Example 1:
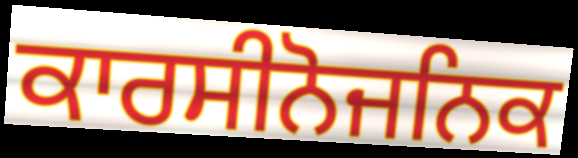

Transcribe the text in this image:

ਕਾਰਸੀਨੋਜਨਿਕ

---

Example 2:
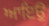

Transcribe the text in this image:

ਆਇਉ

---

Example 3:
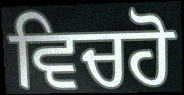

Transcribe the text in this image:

ਵਿਚਹੋ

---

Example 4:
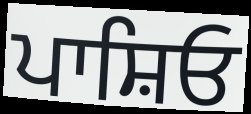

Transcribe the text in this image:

ਪਾਸ਼ਿਓ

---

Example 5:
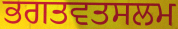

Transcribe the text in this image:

ਭਗਤਵਤਸਲਮ